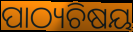
ପାଠ୍ୟଚିଷୟ